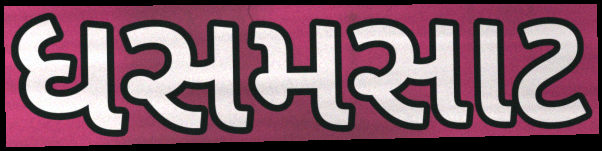
ધસમસાટ